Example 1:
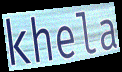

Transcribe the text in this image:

khela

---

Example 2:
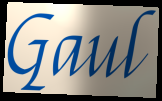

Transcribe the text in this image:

Gaul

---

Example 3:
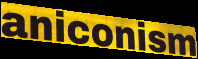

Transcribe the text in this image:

aniconism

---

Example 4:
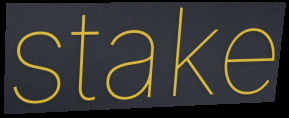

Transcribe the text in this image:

stake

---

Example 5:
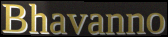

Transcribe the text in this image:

Bhavanno